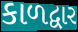
કાળદ્વાર